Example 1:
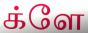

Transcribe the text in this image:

க்ளே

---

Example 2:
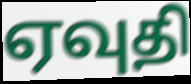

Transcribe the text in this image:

ஏவுதி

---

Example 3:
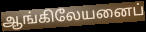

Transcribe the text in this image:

ஆங்கிலேயனைப்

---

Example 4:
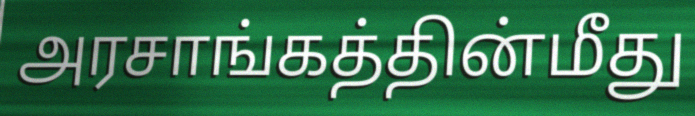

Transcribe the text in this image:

அரசாங்கத்தின்மீது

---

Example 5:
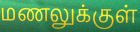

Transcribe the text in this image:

மணலுக்குள்